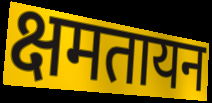
क्षमतायन